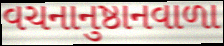
વચનાનુષ્ઠાનવાળા